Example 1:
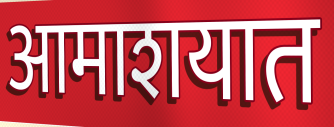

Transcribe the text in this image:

आमाशयात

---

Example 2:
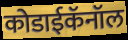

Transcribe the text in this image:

कोडाईकॅनॉल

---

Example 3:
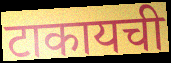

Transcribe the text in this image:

टाकायची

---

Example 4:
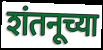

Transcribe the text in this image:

शंतनूच्या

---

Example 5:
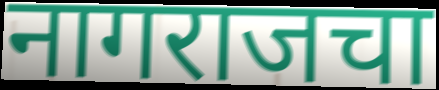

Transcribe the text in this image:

नागराजचा